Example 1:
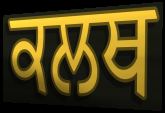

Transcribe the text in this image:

ਕਲਥ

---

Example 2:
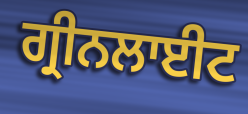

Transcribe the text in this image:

ਗ੍ਰੀਨਲਾਈਟ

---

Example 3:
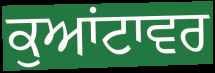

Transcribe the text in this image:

ਕੁਆਂਟਾਵਰ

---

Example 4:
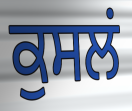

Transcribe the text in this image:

ਕੁਸਲਂ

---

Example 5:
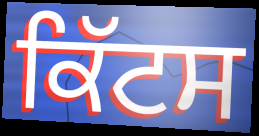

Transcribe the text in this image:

ਕਿੱਟਸ